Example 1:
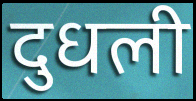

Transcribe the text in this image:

दुधली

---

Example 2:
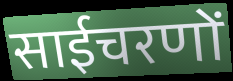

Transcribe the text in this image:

साईचरणों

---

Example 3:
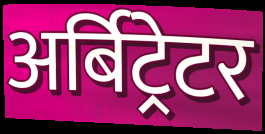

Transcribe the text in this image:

अर्बिट्रेटर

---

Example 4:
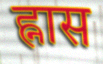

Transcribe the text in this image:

ह्नास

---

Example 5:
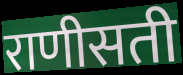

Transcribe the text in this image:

राणीसती